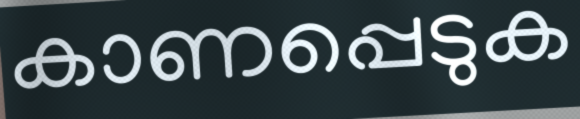
കാണപ്പെടുക